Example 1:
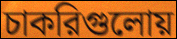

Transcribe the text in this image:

চাকরিগুলোয়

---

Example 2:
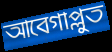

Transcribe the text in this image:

আবেগাপ্লুত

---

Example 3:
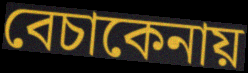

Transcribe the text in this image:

বেচাকেনায়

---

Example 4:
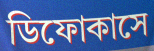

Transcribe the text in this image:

ডিফোকাসে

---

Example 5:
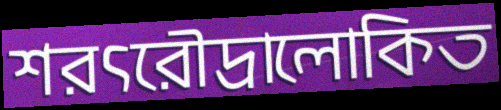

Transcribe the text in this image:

শরৎরৌদ্রালোকিত